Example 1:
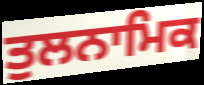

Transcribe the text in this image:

ਤੁਲਨਾਮਿਕ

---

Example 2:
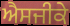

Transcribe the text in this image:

ਐਸਜੀਕੇ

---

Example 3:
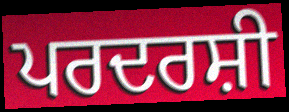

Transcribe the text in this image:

ਪਰਦਰਸ਼ੀ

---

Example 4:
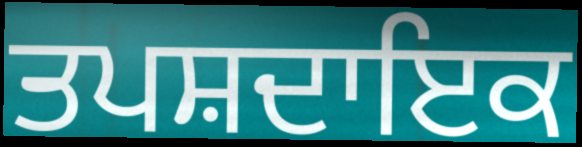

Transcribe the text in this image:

ਤਪਸ਼ਦਾਇਕ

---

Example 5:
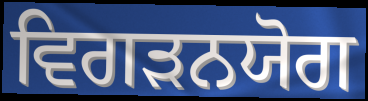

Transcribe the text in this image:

ਵਿਗੜਨਯੋਗ